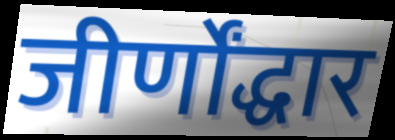
जीर्णोंद्धार